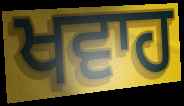
ਖਵਾਹ